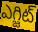
ఎగ్జిట్